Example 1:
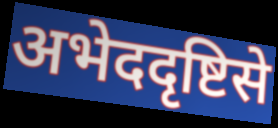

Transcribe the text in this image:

अभेददृष्टिसे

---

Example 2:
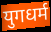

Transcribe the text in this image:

युगधर्म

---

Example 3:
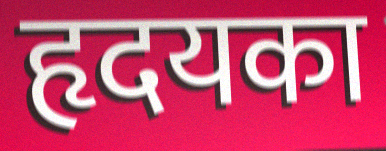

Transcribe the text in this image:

हृदयका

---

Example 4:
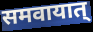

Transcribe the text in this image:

समवायात्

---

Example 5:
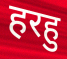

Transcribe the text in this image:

हरहु